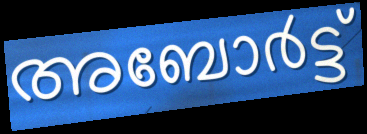
അബോർട്ട്